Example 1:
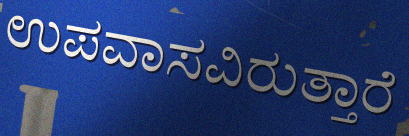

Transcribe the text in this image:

ಉಪವಾಸವಿರುತ್ತಾರೆ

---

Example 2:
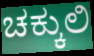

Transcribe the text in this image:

ಚಕ್ಕುಲಿ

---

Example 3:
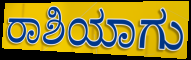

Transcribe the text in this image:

ರಾಶಿಯಾಗು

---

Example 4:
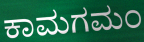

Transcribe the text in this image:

ಕಾಮಗಮಂ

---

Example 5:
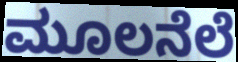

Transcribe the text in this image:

ಮೂಲನೆಲೆ